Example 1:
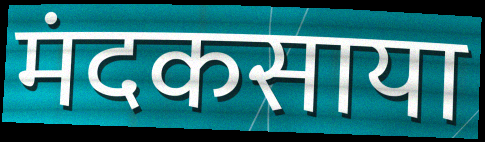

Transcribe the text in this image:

मंदकसाया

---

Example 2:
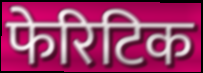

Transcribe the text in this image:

फेरिटिक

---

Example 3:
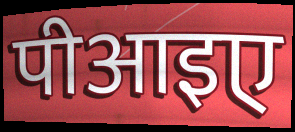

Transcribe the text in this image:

पीआइए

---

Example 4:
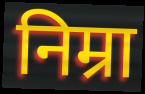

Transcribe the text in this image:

निम्रा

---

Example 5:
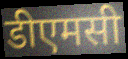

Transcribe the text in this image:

डीएमसी